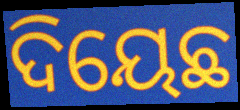
ଦିୟେଛ